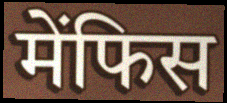
मेंफिस